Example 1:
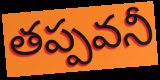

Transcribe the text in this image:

తప్పవనీ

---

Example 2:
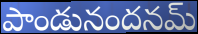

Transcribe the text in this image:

పాండునందనమ్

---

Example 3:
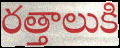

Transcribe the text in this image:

రత్తాలుకి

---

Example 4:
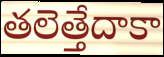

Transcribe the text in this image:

తలెత్తేదాకా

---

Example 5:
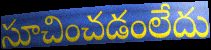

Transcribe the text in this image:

సూచించడంలేదు